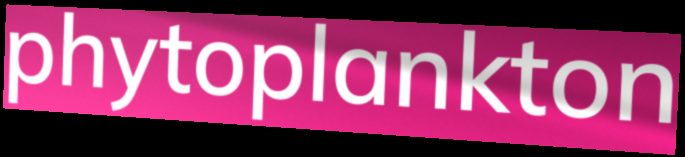
phytoplankton